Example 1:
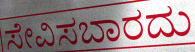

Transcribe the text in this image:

ಸೇವಿಸಬಾರದು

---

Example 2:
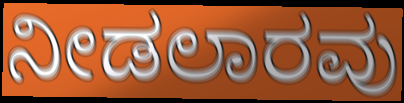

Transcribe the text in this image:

ನೀಡಲಾರವು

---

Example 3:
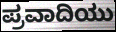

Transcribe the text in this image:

ಪ್ರವಾದಿಯು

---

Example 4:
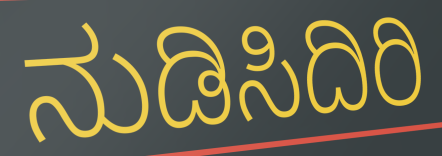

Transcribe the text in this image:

ನುಡಿಸಿದಿರಿ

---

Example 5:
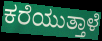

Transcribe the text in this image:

ಕರೆಯುತ್ತಾಳೆ